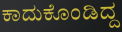
ಕಾದುಕೊಂಡಿದ್ದ